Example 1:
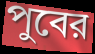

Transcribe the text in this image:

পুবের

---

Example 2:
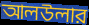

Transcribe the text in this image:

আলউলার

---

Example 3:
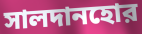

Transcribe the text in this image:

সালদানহোর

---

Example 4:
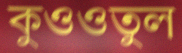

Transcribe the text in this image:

কুওওতুল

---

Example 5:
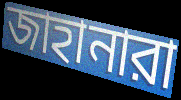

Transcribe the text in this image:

জাহানারা